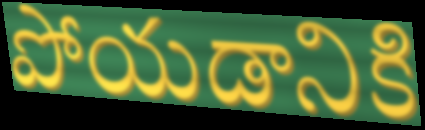
పోయడానికి